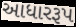
આધારરૂપ